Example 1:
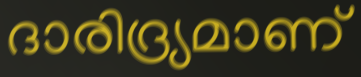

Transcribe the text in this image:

ദാരിദ്ര്യമാണ്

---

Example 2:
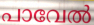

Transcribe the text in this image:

പാവേൽ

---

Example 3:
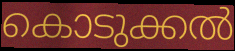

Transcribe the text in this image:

കൊടുക്കൽ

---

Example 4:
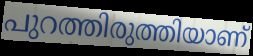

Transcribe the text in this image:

പുറത്തിരുത്തിയാണ്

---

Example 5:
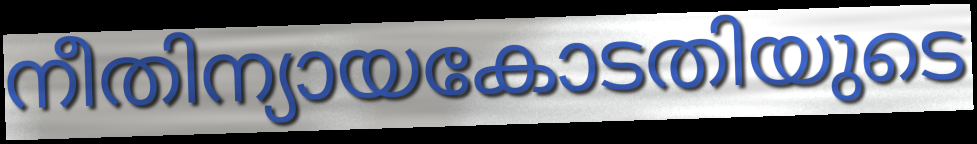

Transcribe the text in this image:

നീതിന്യായകോടതിയുടെ